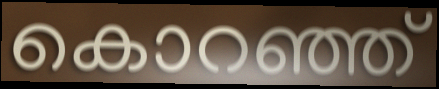
കൊറഞ്ഞ്